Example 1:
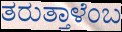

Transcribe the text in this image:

ತರುತ್ತಾಳೆಂಬ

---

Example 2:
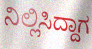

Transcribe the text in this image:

ನಿಲ್ಲಿಸಿದ್ದಾಗ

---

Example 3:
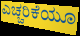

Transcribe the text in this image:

ಎಚ್ಚರಿಕೆಯೂ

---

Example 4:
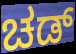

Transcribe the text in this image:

ಚಡ್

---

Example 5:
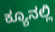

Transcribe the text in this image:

ಕ್ಯೂನಲ್ಲಿ